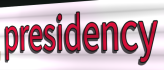
presidency